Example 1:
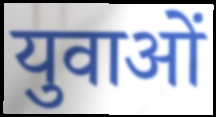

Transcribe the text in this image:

युवाओं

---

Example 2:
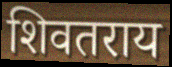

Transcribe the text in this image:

शिवतराय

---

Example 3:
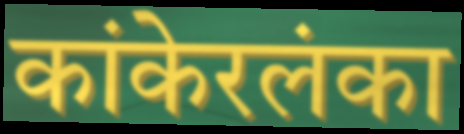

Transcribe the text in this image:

कांकेरलंका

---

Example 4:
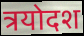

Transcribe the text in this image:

त्रयोदश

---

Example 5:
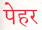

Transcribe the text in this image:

पेहर